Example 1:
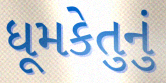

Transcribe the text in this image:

ધૂમકેતુનું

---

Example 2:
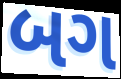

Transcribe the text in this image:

બગ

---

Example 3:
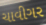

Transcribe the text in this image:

ચાવીગર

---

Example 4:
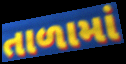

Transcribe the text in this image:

તાળામાં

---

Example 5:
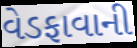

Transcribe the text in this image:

વેડફાવાની